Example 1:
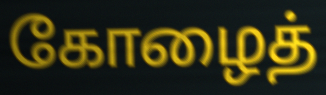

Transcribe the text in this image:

கோழைத்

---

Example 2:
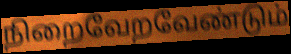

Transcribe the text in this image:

நிறைவேறவேண்டும்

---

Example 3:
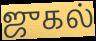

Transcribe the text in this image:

ஜுகல்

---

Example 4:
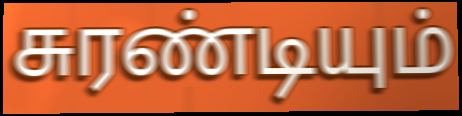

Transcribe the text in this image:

சுரண்டியும்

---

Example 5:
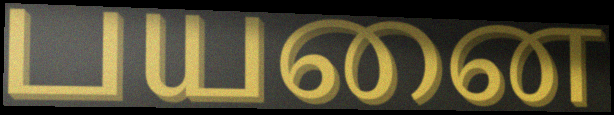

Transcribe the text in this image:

பயனை